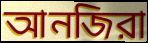
আনজিরা